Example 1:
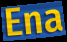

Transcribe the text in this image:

Ena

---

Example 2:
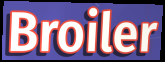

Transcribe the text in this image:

Broiler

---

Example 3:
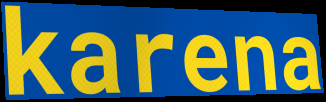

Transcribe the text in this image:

karena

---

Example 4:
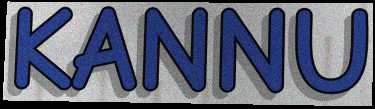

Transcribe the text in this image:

KANNU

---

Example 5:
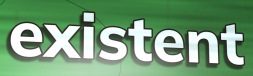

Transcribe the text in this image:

existent